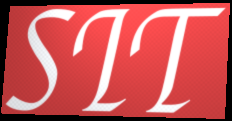
SIT